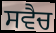
ਸਵੈਚ